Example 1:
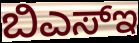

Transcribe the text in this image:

ಬಿಎಸ್ಇ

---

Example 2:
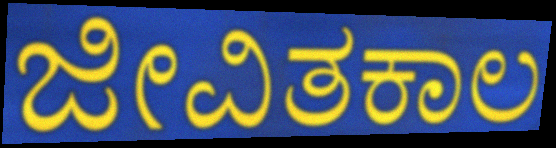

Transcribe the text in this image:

ಜೀವಿತಕಾಲ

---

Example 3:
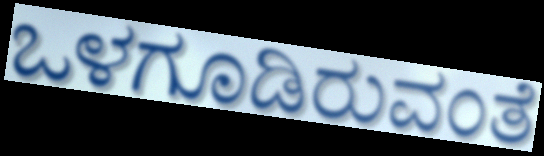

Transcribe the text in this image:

ಒಳಗೂಡಿರುವಂತೆ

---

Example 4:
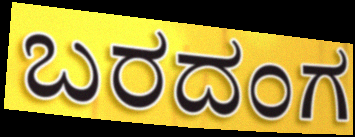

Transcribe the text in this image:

ಬರದಂಗ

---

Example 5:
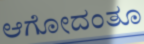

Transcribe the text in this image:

ಆಗೋದಂತೂ